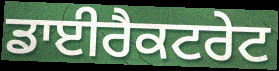
ਡਾਈਰੈਕਟਰੇਟ